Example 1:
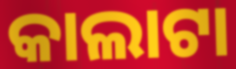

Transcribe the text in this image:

କାଲାଟା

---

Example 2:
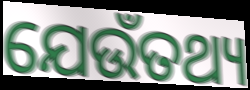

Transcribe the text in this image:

ଯେଉଁତଥ୍ୟ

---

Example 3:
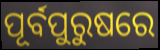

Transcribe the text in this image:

ପୂର୍ବପୁରୁଷରେ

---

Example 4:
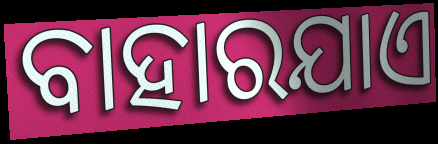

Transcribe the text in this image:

ବାହାରଯାଏ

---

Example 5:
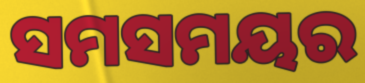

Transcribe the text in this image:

ସମସମୟର